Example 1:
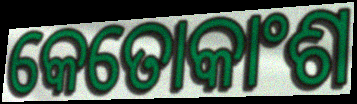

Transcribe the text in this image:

କେତୋକାଂଶ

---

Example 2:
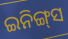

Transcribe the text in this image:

ଇନିଙ୍ଗ୍‌ସ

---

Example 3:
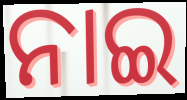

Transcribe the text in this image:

ନାଇ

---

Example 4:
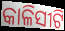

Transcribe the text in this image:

କାଳିସୀଟି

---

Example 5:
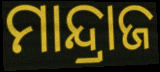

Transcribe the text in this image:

ମାନ୍ଦ୍ରାଜ